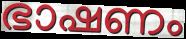
ഭാഷണം